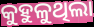
କୁହୁଳୁଥିଲା